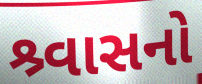
શ્ર્વાસનો